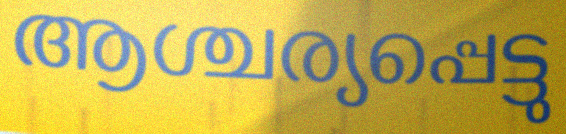
ആശ്ചര്യപ്പെട്ടു